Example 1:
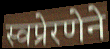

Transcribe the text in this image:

स्वप्रेरणेने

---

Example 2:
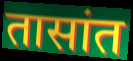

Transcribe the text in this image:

तासांत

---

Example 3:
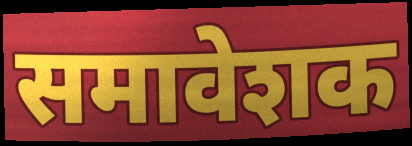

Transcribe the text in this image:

समावेशक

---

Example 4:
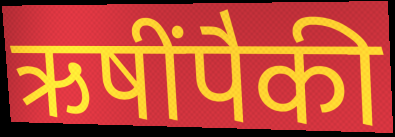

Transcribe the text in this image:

ऋषींपैकी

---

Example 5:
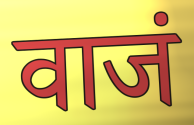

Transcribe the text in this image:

वाजं